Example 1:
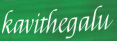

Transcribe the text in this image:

kavithegalu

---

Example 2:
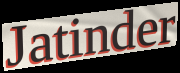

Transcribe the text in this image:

Jatinder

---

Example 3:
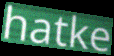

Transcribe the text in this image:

hatke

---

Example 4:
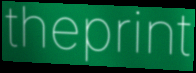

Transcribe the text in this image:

theprint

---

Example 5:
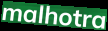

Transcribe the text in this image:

malhotra